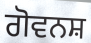
ਗੋਵਨਸ਼